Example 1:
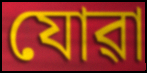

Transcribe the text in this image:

যোৱা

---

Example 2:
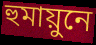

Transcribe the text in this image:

হুমায়ুনে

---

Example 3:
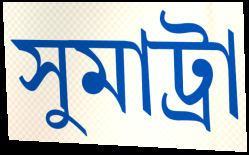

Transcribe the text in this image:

সুমাট্ৰা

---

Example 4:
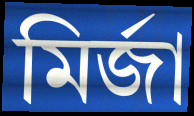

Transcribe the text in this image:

মিৰ্জা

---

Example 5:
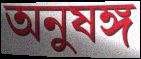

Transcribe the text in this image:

অনুষঙ্গ